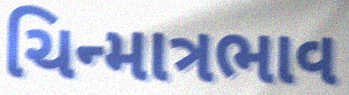
ચિન્માત્રભાવ